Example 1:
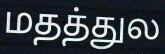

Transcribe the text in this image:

மதத்துல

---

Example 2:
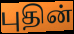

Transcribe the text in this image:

புதின்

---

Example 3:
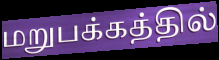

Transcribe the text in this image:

மறுபக்கத்தில்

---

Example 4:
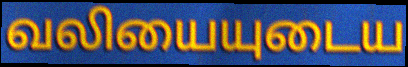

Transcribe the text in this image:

வலியையுடைய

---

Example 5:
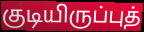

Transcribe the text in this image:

குடியிருப்புத்